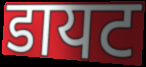
डायट